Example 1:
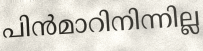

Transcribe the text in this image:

പിൻമാറിനിന്നില്ല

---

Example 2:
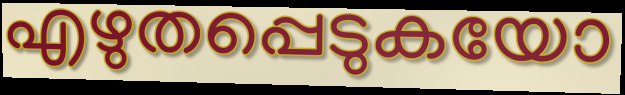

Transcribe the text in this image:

എഴുതപ്പെടുകയോ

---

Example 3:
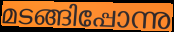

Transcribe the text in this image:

മടങ്ങിപ്പോന്നു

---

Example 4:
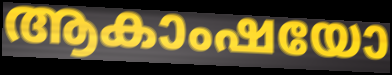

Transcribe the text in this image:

ആകാംഷയോ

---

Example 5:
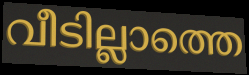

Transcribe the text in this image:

വീടില്ലാത്തെ